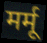
मर्मू